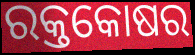
ରକ୍ତକୋଷର